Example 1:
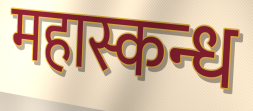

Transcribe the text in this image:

महास्कन्ध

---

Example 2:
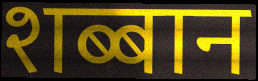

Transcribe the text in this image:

शब्बान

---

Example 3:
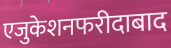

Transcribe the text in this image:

एजुकेशनफरीदाबाद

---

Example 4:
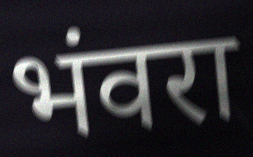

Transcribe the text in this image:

भंवरा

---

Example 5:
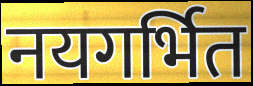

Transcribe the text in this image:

नयगर्भित